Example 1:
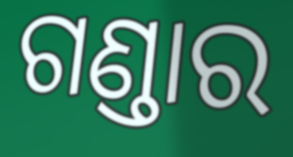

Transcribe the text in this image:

ଗଣ୍ଡାର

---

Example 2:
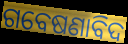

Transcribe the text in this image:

ଗବେଷଣାବିଦ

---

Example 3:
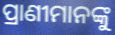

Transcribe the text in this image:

ପ୍ରାଣୀମାନଙ୍କୁ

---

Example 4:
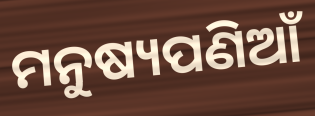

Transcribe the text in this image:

ମନୁଷ୍ୟପଣିଆଁ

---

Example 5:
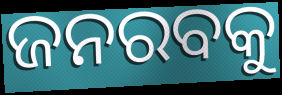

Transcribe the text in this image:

ଜନରବକୁ